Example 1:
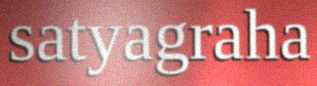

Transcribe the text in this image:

satyagraha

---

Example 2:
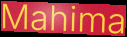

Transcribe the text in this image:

Mahima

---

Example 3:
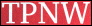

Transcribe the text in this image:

TPNW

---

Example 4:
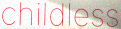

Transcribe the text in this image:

childless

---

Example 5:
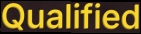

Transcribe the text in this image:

Qualified